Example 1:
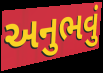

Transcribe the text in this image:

અનુભવું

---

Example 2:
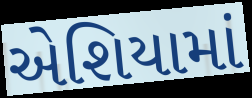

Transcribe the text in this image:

એશિયામાં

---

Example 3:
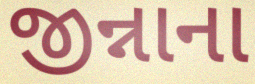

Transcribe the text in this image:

જીન્નાના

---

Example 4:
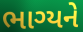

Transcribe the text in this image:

ભાગ્યને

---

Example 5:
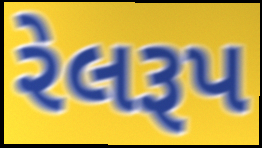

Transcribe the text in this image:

રેલરૂપ